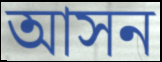
আসন